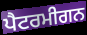
ਪੈਟਰਮੀਗਨ